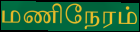
மணிநேரம்